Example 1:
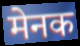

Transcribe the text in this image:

मेनक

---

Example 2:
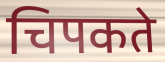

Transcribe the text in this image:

चिपकते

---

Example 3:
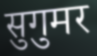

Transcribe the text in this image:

सुगुमर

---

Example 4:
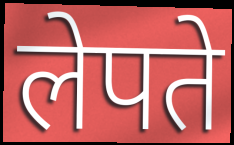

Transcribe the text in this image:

लेपते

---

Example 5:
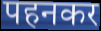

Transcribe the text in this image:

पहनकर